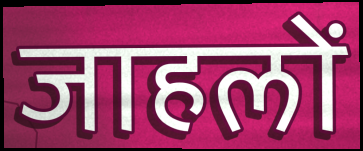
जाहलों